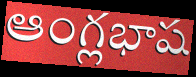
ఆంగ్లభాష